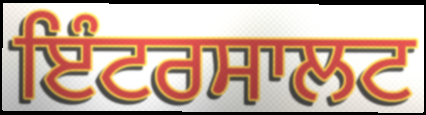
ਇੰਟਰਸਾਲਟ